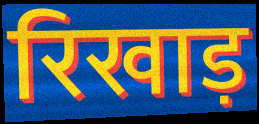
रिखाड़